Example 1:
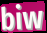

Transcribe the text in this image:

biw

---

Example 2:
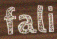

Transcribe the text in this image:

fali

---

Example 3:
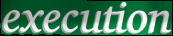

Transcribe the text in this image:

execution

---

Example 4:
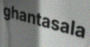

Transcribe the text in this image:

ghantasala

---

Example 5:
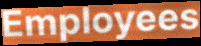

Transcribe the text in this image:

Employees